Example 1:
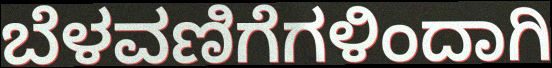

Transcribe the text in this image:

ಬೆಳವಣಿಗೆಗಳಿಂದಾಗಿ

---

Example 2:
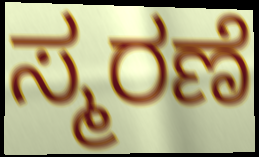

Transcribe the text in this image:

ಸ್ಮರಣೆ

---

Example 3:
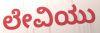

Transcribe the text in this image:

ಲೇವಿಯು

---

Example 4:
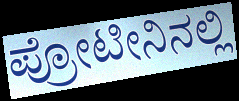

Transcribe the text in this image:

ಪ್ರೋಟೀನಿನಲ್ಲಿ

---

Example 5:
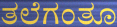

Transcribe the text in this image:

ತಲೆಗಂತೂ